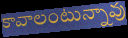
కావాలంటున్నావు